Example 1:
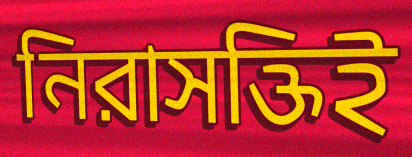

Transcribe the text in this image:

নিরাসক্তিই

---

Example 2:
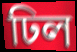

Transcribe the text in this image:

ঢিল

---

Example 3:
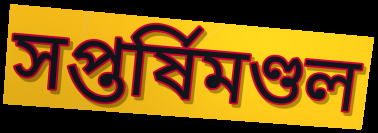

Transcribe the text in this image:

সপ্তর্ষিমণ্ডল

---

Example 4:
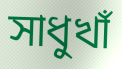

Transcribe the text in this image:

সাধুখাঁ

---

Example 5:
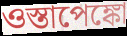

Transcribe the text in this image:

ওস্তাপেঙ্কো